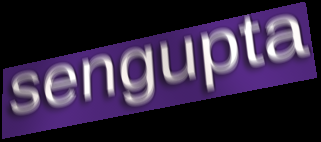
sengupta